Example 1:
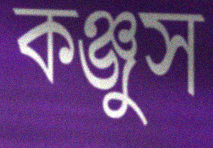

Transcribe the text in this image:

কঞ্জুস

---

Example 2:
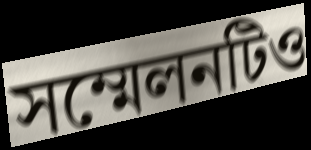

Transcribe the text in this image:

সম্মেলনটিও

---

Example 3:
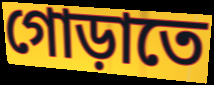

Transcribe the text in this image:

গোড়াতে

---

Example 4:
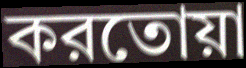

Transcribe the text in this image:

করতোয়া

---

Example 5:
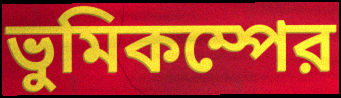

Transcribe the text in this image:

ভুমিকম্পের